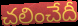
చలించేదీ